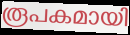
രൂപകമായി